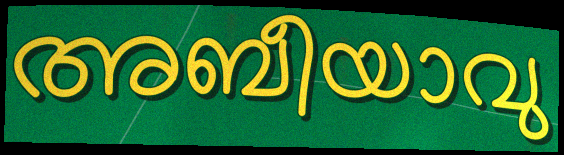
അബീയാവു